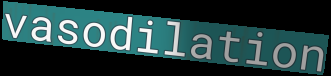
vasodilation